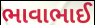
ભાવાભાઈ